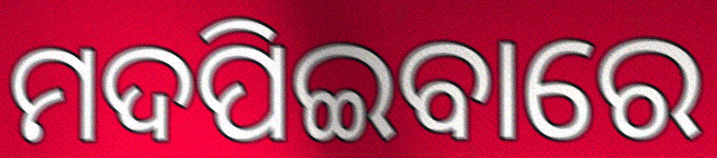
ମଦପିଇବାରେ